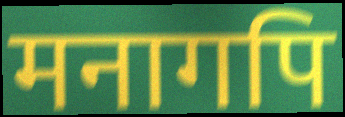
मनागपि